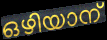
ഒഴിയാന്